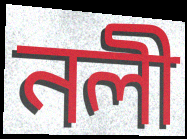
নলী